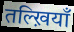
तल्ख़ियाँ